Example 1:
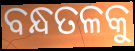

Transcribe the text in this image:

ବନ୍ଧତଳକୁ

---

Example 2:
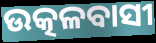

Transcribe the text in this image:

ଉତ୍କଳବାସୀ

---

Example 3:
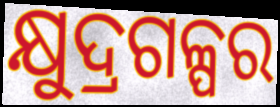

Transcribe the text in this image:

କ୍ଷୁଦ୍ରଗଳ୍ପର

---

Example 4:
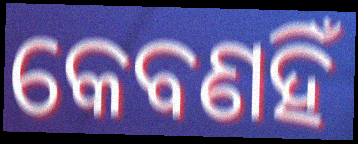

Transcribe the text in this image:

କେବଣହିଁ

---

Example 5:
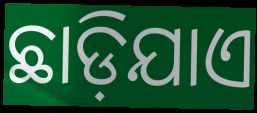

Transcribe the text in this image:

ଛାଡ଼ିଯାଏ